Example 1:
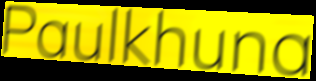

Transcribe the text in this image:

Paulkhuna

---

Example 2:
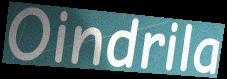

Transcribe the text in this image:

Oindrila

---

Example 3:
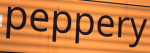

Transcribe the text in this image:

peppery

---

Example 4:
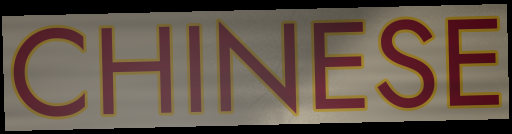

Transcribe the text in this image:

CHINESE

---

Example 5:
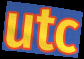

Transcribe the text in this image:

utc